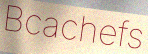
Bcachefs